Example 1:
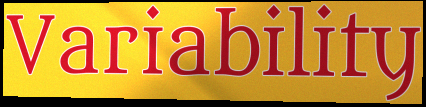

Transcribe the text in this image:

Variability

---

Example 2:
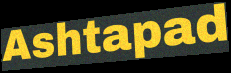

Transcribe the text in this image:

Ashtapad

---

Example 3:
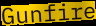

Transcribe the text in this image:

Gunfire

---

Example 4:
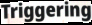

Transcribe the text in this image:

Triggering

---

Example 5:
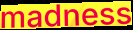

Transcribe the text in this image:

madness